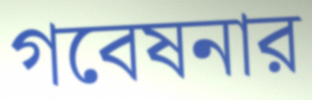
গবেষনার